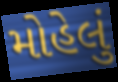
મોહેલું